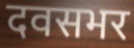
दवसभर